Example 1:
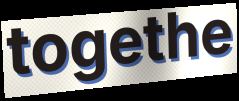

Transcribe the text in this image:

togethe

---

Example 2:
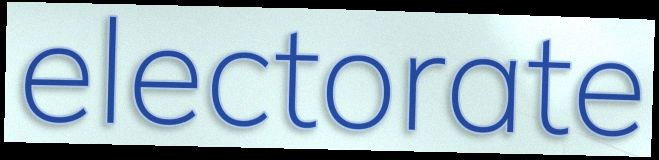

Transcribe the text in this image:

electorate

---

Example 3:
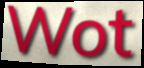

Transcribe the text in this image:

Wot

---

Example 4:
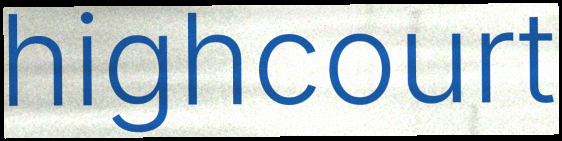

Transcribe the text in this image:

highcourt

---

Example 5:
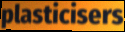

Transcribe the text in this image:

plasticisers